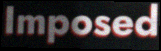
Imposed